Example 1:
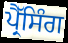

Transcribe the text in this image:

ਪ੍ਰੈੱਸਿੰਗ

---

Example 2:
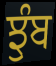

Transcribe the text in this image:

ਝੁੰਬ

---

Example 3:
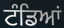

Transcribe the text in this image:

ਟੰਡਿਆਂ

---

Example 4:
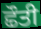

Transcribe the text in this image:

ਛੌਤੀ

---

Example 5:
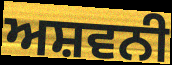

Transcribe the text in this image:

ਅਸ਼ਵਨੀ